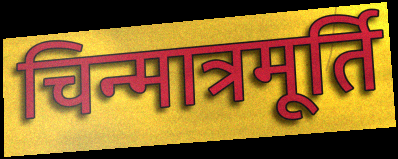
चिन्मात्रमूर्ति